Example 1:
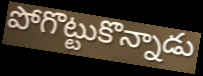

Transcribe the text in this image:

పోగొట్టుకొన్నాడు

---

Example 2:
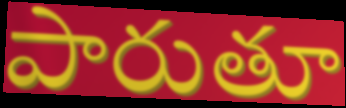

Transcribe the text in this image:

పారుతూ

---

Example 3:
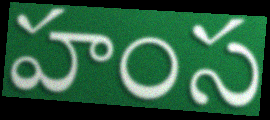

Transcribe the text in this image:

హంస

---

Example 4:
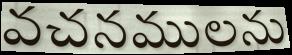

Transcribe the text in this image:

వచనములను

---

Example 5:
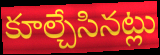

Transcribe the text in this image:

కూల్చేసినట్లు